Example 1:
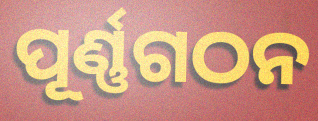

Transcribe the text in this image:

ପୂର୍ଣ୍ଣଗଠନ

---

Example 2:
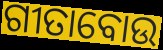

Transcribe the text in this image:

ଗୀତାବୋଉ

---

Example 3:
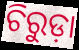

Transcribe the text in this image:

ଚିରୁଡ଼ା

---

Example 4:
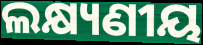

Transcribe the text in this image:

ଲକ୍ଷ୍ୟଣୀୟ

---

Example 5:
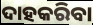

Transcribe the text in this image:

ଦାହକରିବା